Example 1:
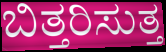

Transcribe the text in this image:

ಬಿತ್ತರಿಸುತ್ತ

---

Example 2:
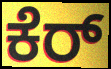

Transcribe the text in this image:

ಕೆರ್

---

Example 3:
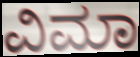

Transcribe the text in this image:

ವಿಮಾ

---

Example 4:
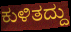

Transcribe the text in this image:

ಕುಳಿತದ್ದು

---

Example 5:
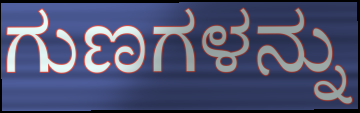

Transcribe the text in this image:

ಗುಣಗಳನ್ನು